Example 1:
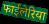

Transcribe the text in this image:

फाईलेरिया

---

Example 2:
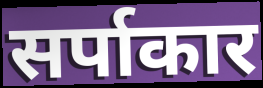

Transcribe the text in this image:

सर्पाकार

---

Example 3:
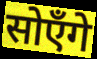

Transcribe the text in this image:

सोएँगे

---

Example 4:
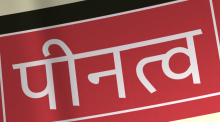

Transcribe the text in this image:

पीनत्व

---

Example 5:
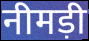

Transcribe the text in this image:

नीमड़ी